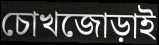
চোখজোড়াই